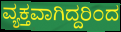
ವ್ಯಕ್ತವಾಗಿದ್ದರಿಂದ